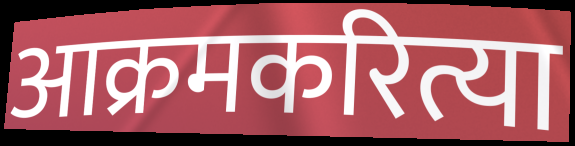
आक्रमकरित्या